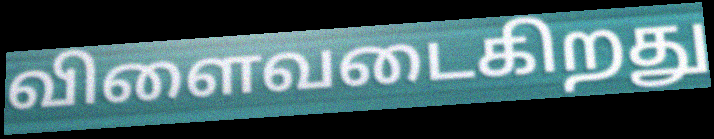
விளைவடைகிறது